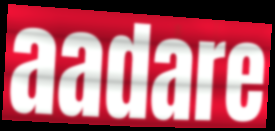
aadare